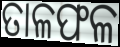
ତାଳଫଳ